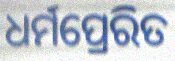
ଧର୍ମପ୍ରେରିତ